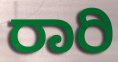
ರಾರಿ